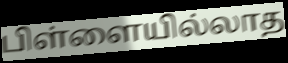
பிள்ளையில்லாத